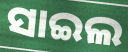
ସାଇଲ